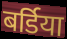
बर्डिया